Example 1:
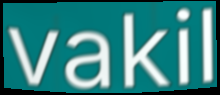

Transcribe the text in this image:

vakil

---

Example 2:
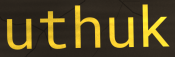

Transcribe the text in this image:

uthuk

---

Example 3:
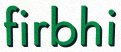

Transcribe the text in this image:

firbhi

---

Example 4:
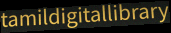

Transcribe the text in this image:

tamildigitallibrary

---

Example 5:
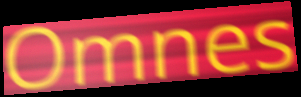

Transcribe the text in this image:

Omnes